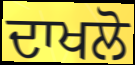
ਦਾਖਲੋ